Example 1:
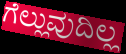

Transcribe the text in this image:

ಗೆಲ್ಲುವುದಿಲ್ಲ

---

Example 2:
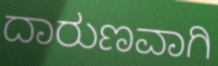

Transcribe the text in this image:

ದಾರುಣವಾಗಿ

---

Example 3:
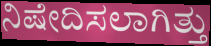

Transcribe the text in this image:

ನಿಷೇದಿಸಲಾಗಿತ್ತು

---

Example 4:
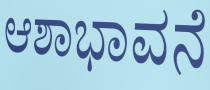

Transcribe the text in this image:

ಆಶಾಭಾವನೆ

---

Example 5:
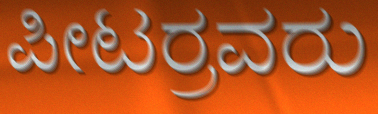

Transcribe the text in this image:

ಪೀಟರ್‍ರವರು